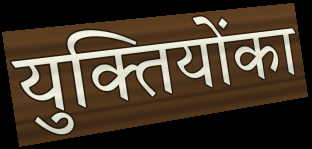
युक्तियोंका